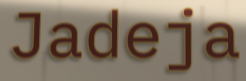
Jadeja